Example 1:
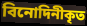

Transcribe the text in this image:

বিনোদিনীকৃত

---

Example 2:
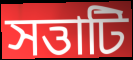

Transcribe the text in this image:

সত্তাটি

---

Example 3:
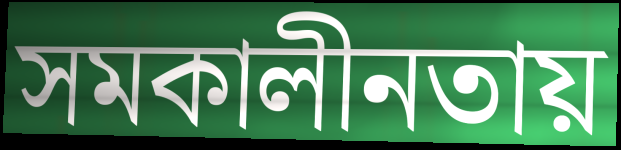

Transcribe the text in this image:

সমকালীনতায়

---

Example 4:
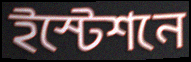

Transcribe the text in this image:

ইস্টেশনে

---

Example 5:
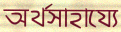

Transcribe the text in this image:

অর্থসাহায্যে